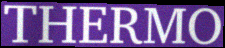
THERMO